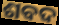
ଶବଦ